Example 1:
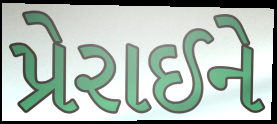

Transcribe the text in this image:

પ્રેરાઈને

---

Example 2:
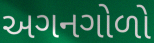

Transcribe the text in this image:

અગનગોળો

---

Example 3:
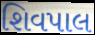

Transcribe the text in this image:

શિવપાલ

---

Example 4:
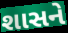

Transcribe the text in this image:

શાસને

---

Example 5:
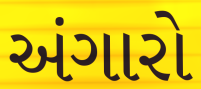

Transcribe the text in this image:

અંગારો